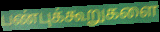
பண்புக்கூறுகளை